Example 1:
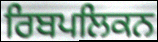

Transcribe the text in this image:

ਰਿਬਪਲਿਕਨ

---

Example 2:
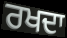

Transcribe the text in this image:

ਰਖਦਾ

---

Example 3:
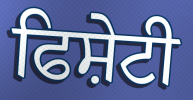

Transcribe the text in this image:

ਫਿਸ਼ੇਟੀ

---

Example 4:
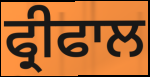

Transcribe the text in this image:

ਫ੍ਰੀਫਾਲ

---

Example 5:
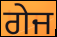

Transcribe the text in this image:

ਗੇਜ